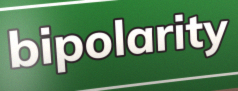
bipolarity